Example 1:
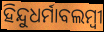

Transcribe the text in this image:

ହିନ୍ଦୁଧର୍ମାବଲମ୍ବୀ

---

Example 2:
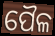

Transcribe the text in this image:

ପୈଳ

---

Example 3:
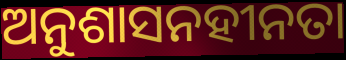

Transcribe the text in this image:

ଅନୁଶାସନହୀନତା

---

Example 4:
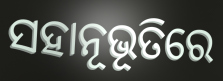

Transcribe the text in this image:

ସହାନୂଭୂତିରେ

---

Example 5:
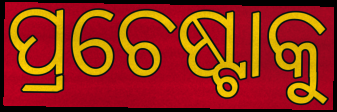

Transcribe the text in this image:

ପ୍ରଚେଷ୍ଟାକୁ